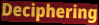
Deciphering